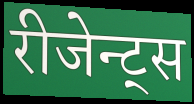
रीजेन्ट्स